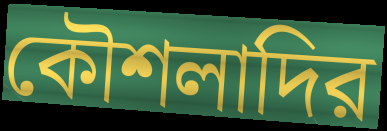
কৌশলাদির